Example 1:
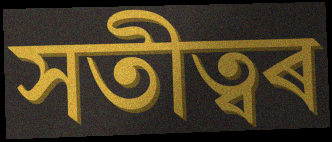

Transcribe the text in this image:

সতীত্বৰ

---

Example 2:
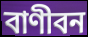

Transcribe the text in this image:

বাণীবন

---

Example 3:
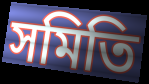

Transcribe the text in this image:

সমিতি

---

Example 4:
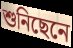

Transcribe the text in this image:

শুনিছেনে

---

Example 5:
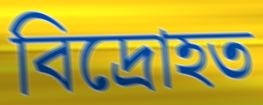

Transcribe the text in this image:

বিদ্ৰোহত